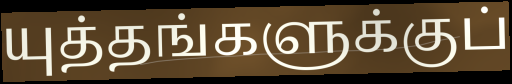
யுத்தங்களுக்குப்